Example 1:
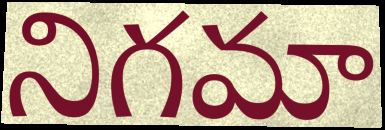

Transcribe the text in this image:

నిగమా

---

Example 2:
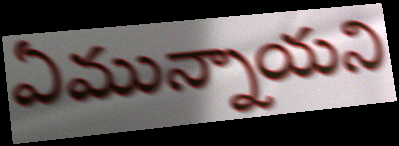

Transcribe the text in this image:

ఏమున్నాయని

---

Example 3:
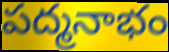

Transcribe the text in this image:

పద్మనాభం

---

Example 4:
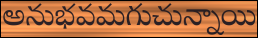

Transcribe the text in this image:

అనుభవమగుచున్నాయి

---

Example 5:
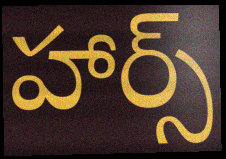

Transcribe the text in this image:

హార్స్